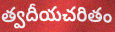
త్వదీయచరితం